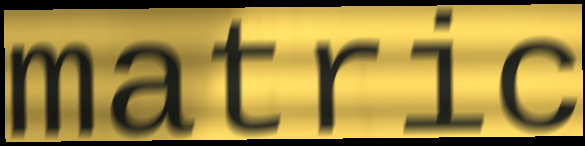
matric